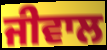
ਜੀਵਾਲ